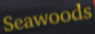
Seawoods